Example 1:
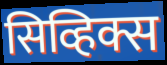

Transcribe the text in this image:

सिव्हिक्स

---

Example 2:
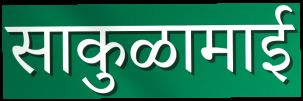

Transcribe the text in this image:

साकुळामाई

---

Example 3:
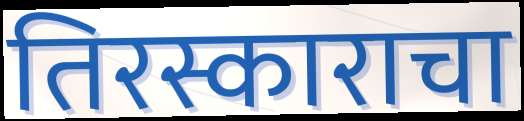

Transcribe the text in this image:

तिरस्काराचा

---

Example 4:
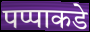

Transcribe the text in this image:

पप्पाकडे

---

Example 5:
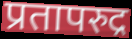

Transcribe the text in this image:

प्रतापरुद्र